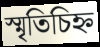
স্মৃতিচিহ্ন